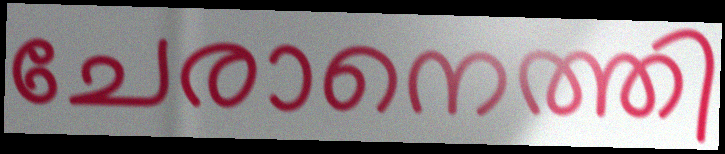
ചേരാനെത്തി